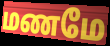
மணமே